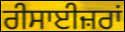
ਰੀਸਾਈਜ਼ਰਾਂ